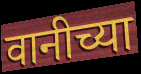
वानीच्या